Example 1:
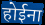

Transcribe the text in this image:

होईना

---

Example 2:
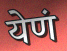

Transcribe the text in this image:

येणं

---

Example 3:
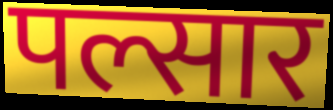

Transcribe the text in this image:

पल्सार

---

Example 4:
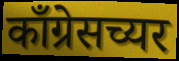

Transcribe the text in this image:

काँग्रेसच्यर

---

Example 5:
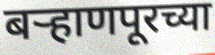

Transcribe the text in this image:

बऱ्हाणपूरच्या